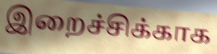
இறைச்சிக்காக